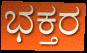
ಭಕ್ತರ